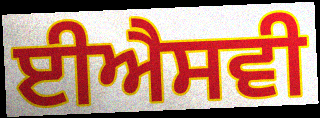
ਈਐਸਵੀ